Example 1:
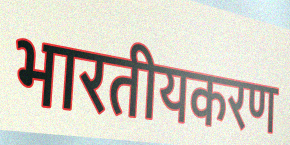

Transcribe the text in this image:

भारतीयकरण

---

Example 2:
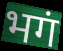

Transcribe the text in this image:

भगं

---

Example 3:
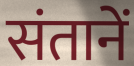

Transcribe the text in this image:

संतानें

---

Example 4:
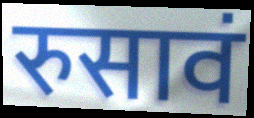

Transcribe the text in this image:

रुसावं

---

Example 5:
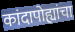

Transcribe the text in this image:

कांदापोह्यांचा